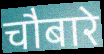
चौबारे